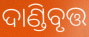
ଦାଣ୍ଡିବୃତ୍ତ